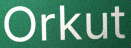
Orkut